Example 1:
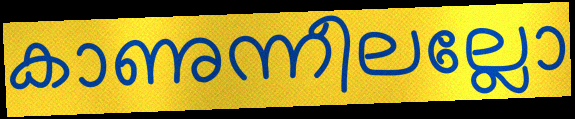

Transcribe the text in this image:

കാണുന്നീലല്ലോ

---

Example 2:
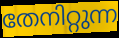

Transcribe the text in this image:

തേനിറ്റുന്ന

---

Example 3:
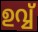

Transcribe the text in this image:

ഉവ്വ്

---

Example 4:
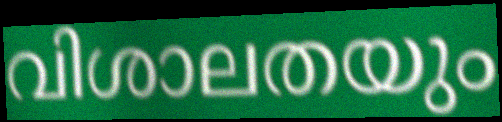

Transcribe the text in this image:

വിശാലതയും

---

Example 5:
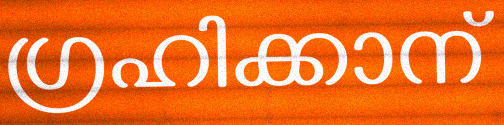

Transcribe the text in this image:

ഗ്രഹിക്കാന്